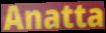
Anatta